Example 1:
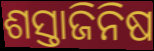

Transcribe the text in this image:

ଶସ୍ତାଜିନିଷ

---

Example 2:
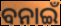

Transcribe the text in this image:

ବନାଇଁ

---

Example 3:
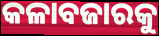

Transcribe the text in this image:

କଳାବଜାରକୁ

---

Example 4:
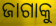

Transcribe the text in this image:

ଜାଗାକୁ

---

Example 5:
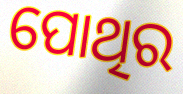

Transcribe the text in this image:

ପୋଥିର